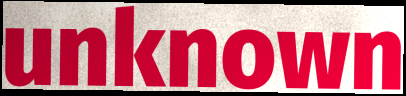
unknown